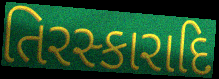
તિરસ્કારાદિ